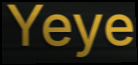
Yeye